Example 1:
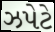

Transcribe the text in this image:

ઝપેટે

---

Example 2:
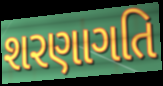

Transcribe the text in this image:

શરણાગતિ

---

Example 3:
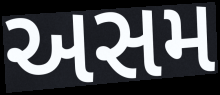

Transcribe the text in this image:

અસમ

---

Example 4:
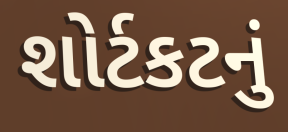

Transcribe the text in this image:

શોર્ટકટનું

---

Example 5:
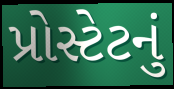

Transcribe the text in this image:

પ્રોસ્ટેટનું